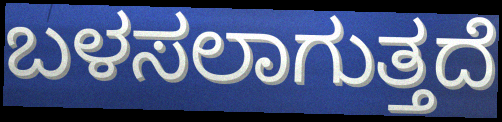
ಬಳಸಲಾಗುತ್ತದೆ